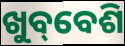
ଖୁବ୍‌ବେଶି